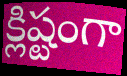
క్లిష్టంగా